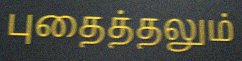
புதைத்தலும்